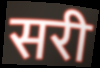
सरी